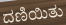
ದಣಿಯಿತು